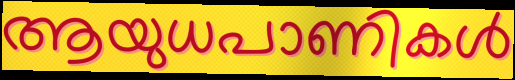
ആയുധപാണികൾ